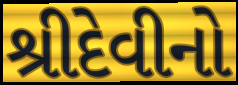
શ્રીદેવીનો